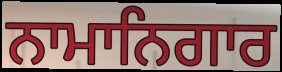
ਨਾਮਾਨਿਗਾਰ